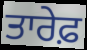
ਤਾਰੇਫ਼